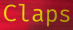
Claps